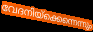
വേദനിയ്ക്കെന്നെന്നും